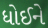
ધોઈને